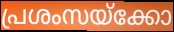
പ്രശംസയ്ക്കോ